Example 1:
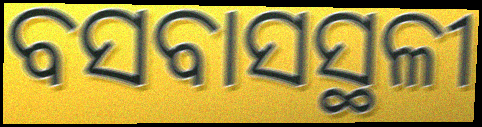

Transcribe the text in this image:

ବସବାସସ୍ଥଳୀ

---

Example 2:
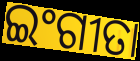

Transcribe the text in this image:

ଇଂଗୀତା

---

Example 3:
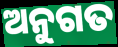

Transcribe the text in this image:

ଅନୁଗତ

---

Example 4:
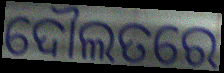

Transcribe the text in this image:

ଦୌଲତରେ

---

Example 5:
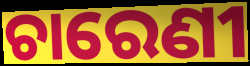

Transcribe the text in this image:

ଚାରେଣୀ